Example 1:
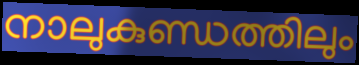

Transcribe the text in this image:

നാലുകുണ്ഡത്തിലും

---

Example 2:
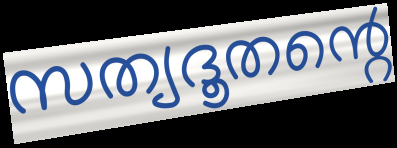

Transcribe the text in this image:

സത്യദൂതന്റെ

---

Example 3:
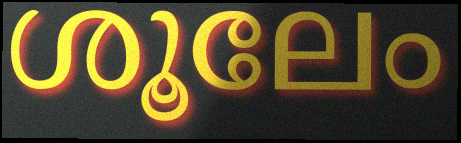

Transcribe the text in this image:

ശൂലേം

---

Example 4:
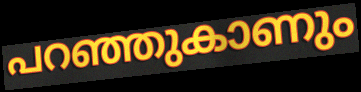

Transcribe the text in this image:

പറഞ്ഞുകാണും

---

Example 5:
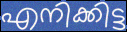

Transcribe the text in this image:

എനിക്കിട്ട